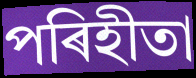
পৰিহীতা